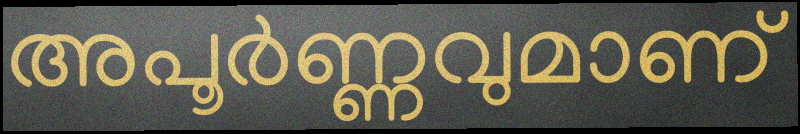
അപൂർണ്ണവുമാണ്